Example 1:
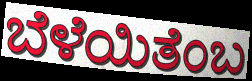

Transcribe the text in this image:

ಬೆಳೆಯಿತೆಂಬ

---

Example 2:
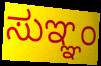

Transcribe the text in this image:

ಸುಞ್ಞಂ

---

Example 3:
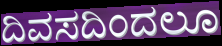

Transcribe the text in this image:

ದಿವಸದಿಂದಲೂ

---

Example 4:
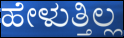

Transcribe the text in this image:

ಹೇಳುತ್ತಿಲ್ಲ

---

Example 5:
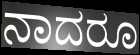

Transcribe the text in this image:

ನಾದರೂ